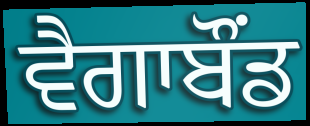
ਵੈਗਾਬੌਂਡ